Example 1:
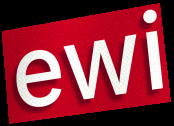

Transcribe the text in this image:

ewi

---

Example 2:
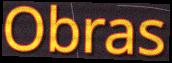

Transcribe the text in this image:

Obras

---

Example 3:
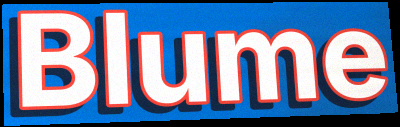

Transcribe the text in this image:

Blume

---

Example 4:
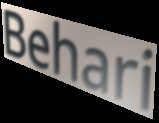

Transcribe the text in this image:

Behari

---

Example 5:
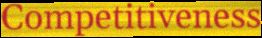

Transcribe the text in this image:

Competitiveness